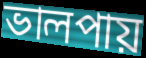
ভালপায়